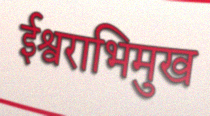
ईश्वराभिमुख